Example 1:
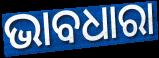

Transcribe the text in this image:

ଭାବଧାରା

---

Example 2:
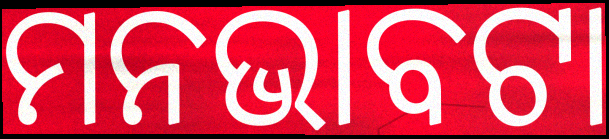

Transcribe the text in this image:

ମନଭାବଟା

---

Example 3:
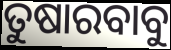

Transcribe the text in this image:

ତୁଷାରବାବୁ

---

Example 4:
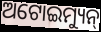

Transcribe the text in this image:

ଅଟୋଇମ୍ୟୁନ୍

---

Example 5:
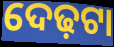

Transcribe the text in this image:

ଦେଢ଼ଟା